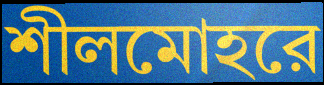
শীলমোহরে